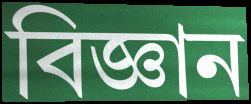
বিজ্ঞান